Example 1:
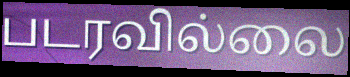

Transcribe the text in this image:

படரவில்லை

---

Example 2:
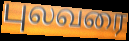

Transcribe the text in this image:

புலவரை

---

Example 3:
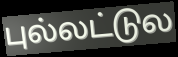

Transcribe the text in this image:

புல்லட்டுல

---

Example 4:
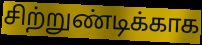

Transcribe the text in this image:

சிற்றுண்டிக்காக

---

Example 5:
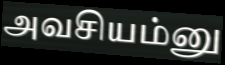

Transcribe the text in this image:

அவசியம்னு